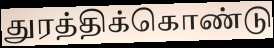
துரத்திக்கொண்டு